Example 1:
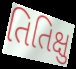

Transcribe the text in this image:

તિતિક્ષુ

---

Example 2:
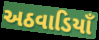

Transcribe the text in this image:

અઠવાડિયાઁ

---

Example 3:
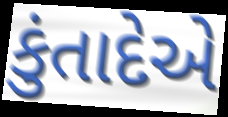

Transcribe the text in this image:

કુંતાદેએ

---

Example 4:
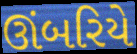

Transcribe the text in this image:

ઊંબરિયે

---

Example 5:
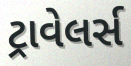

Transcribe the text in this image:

ટ્રાવેલર્સ